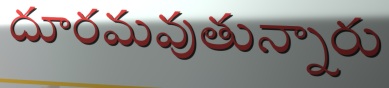
దూరమవుతున్నారు